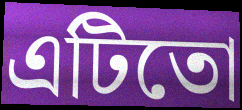
এটিতো